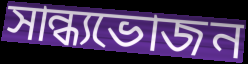
সান্ধ্যভোজন